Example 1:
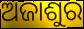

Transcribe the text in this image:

ଅଜାଶୁର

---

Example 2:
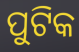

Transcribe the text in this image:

ପୁଟିକ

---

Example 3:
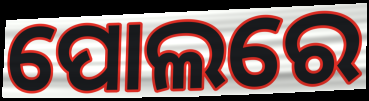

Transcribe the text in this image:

ପୋଲରେ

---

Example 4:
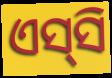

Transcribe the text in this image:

ଏସ୍‌ସି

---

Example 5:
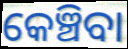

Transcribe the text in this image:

କେଞ୍ଚିବା